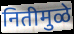
नितीमुळे